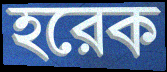
হরেক